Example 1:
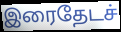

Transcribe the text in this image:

இரைதேடச்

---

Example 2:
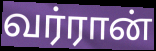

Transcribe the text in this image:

வர்ரான்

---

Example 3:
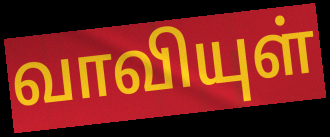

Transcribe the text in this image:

வாவியுள்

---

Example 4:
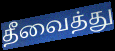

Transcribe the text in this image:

தீவைத்து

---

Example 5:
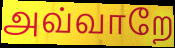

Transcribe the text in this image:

அவ்வாறே